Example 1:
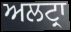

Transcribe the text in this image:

ਅਲਟ੍ਰਾ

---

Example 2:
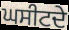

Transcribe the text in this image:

ਘਸੀਟਦੇ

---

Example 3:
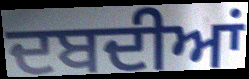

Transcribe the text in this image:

ਦਬਦੀਆਂ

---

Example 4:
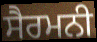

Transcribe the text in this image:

ਸੈਰਮਨੀ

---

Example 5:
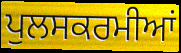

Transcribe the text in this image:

ਪੁਲਸਕਰਮੀਆਂ